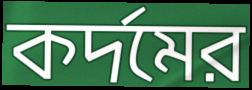
কর্দমের